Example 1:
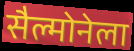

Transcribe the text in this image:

सैल्मोनेला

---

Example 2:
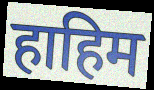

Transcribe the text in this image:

हाहिम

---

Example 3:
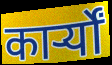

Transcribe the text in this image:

कार्र्यों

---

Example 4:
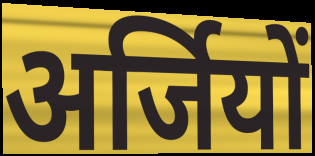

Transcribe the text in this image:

अर्जियों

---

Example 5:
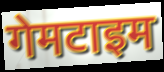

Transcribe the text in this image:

गेमटाइम